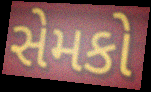
સેમકો